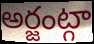
అర్జంట్గా